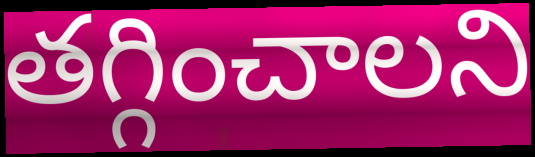
తగ్గించాలని